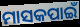
ମାସକପାଇଁ